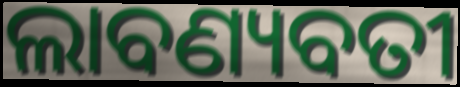
ଲାବଣ୍ୟବତୀ